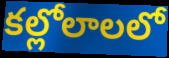
కల్లోలాలలో